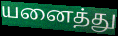
யனைத்து